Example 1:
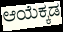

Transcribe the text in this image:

ಆಯೆಕ್ಕಡ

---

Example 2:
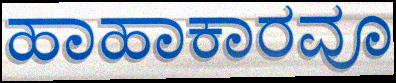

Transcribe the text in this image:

ಹಾಹಾಕಾರವೂ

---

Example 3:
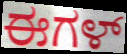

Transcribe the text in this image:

ಈಗಳ್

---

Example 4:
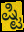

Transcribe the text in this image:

ಷ್ಟಿ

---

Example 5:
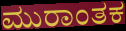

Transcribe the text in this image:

ಮುರಾಂತಕ